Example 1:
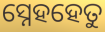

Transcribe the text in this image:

ସ୍ନେହହେତୁ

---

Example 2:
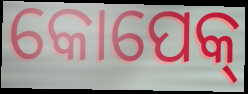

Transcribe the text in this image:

କୋପେକ୍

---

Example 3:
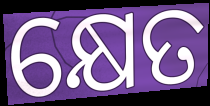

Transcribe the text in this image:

କ୍ଷେତ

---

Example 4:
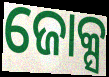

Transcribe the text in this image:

ଜୋକ୍ସ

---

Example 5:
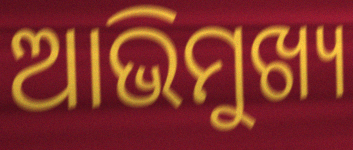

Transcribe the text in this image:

ଆଭିମୁଖ୍ୟ